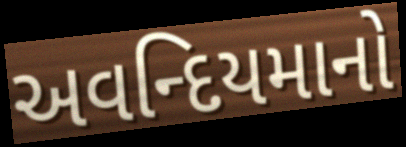
અવન્દિયમાનો